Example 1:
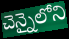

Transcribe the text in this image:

చెన్నైలోని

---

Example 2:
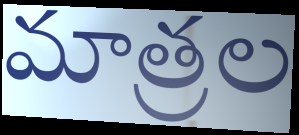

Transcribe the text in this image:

మాత్రల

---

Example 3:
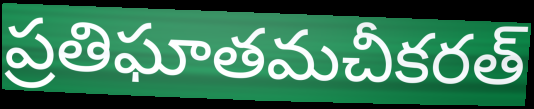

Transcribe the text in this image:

ప్రతిఘాతమచీకరత్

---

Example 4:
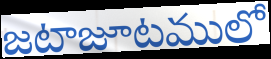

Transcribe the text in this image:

జటాజూటములో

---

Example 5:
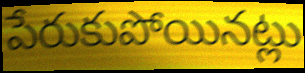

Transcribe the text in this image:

పేరుకుపోయినట్లు